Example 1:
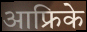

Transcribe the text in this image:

आफ्रिके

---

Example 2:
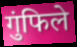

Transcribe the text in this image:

गुंफिले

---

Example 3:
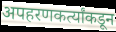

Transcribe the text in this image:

अपहरणकर्त्यांकडून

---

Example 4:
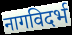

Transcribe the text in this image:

नागविदर्भ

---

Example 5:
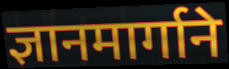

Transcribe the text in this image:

ज्ञानमार्गाने